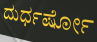
ದುರ್ಧರ್ಷೋ